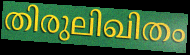
തിരുലിഖിതം